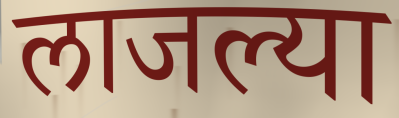
लाजल्या